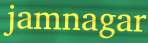
jamnagar